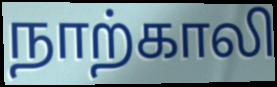
நாற்காலி